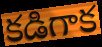
కడిగాక